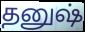
தனுஷ்